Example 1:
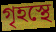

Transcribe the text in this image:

গৃহস্থে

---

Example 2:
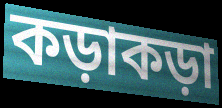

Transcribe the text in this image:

কড়াকড়া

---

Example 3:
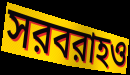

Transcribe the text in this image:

সরবরাহও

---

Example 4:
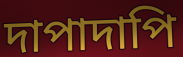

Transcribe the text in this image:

দাপাদাপি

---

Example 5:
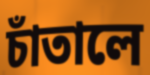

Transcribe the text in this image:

চাঁতালে